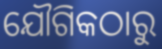
ଯୌଗିକଠାରୁ